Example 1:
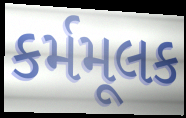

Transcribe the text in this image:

કર્મમૂલક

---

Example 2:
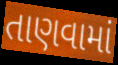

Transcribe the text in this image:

તાણવામાં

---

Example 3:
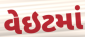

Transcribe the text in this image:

વેઇટમાં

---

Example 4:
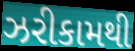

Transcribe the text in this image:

ઝરીકામથી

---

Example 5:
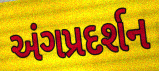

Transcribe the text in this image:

અંગપ્રદર્શન